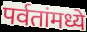
पर्वतांमध्ये